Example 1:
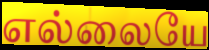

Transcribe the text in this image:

எல்லையே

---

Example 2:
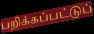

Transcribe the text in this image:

பறிக்கப்பட்டுப்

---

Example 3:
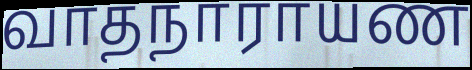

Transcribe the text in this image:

வாதநாராயண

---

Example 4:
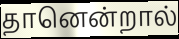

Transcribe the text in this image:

தானென்றால்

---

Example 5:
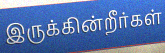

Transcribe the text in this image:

இருக்கின்றீர்கள்